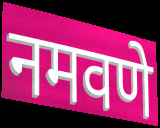
नमवणे